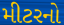
મીટરનો